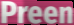
Preen